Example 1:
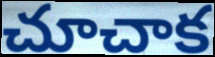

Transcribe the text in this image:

చూచాక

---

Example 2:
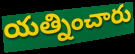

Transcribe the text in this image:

యత్నించారు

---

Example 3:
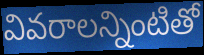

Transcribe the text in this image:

వివరాలన్నింటితో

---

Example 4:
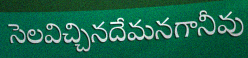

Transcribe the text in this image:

సెలవిచ్చినదేమనగానీవు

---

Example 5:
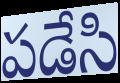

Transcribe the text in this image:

పడేసి